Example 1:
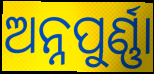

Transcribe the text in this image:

ଅନ୍ନପୁର୍ଣ୍ଣା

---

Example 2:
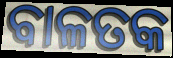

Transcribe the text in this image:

ବାଳତକ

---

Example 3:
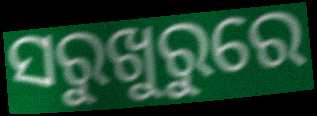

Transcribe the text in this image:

ସରୁଖୁରୁରେ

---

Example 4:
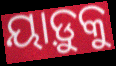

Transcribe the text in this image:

ୟାଡ଼ୁକୁ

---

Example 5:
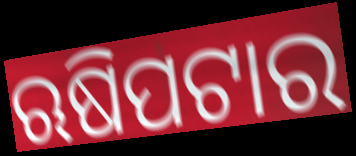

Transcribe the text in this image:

ଋଷିପଟାର